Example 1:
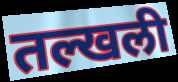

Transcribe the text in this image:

तल्खली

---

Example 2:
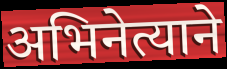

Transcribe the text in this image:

अभिनेत्याने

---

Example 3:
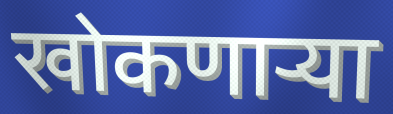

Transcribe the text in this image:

खोकणाऱ्या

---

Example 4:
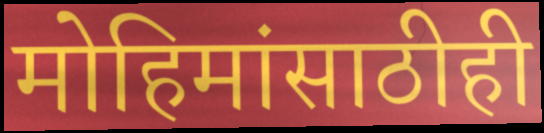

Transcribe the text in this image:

मोहिमांसाठीही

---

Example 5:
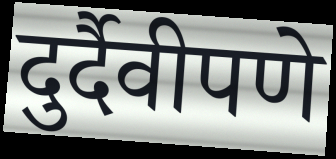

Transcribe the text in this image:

दुर्दैवीपणे